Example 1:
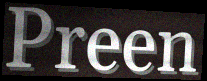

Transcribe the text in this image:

Preen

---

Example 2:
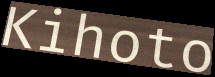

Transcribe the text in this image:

Kihoto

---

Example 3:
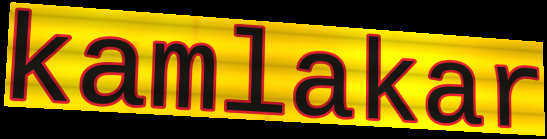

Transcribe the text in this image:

kamlakar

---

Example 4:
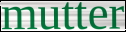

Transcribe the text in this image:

mutter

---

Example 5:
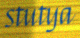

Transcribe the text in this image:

stutya